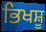
ਭਿਖਸ਼ੂ